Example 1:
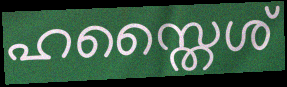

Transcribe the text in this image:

ഹസ്തൈശ്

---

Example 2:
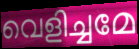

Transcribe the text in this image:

വെളിച്ചമേ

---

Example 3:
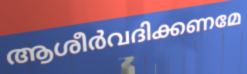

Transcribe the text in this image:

ആശീർവദിക്കണമേ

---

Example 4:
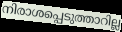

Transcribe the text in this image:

നിരാശപ്പെടുത്താറില്ല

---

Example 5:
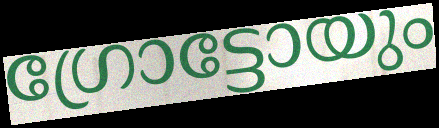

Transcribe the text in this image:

ഗ്രോട്ടോയും